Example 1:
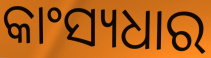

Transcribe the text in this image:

କାଂସ୍ୟଧାର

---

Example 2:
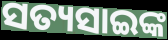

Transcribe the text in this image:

ସତ୍ୟସାଇଙ୍କ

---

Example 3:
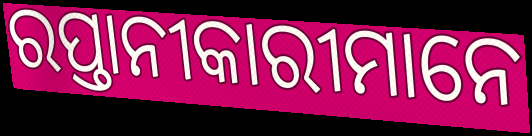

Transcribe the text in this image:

ରପ୍ତାନୀକାରୀମାନେ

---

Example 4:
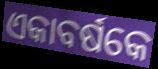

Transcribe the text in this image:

ଏକାବର୍ଷକେ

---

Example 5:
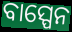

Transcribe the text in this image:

ବାସ୍ପେନ